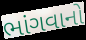
ભાંગવાનો